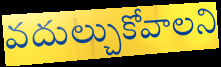
వదుల్చుకోవాలని